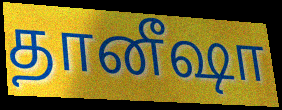
தானீஷா